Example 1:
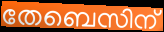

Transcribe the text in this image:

തേബെസിന്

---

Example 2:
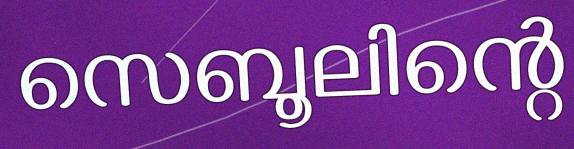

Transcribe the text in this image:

സെബൂലിന്റെ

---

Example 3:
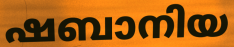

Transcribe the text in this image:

ഷബാനിയ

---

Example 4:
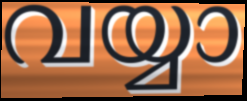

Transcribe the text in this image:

വയ്യാ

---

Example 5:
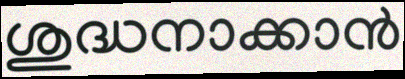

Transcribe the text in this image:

ശുദ്ധനാക്കാൻ